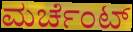
ಮರ್ಚೆಂಟ್